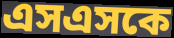
এসএসকে